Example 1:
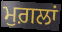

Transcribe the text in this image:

ਮੁਗ਼ਲਾਂ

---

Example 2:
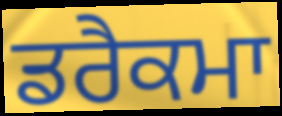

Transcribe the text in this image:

ਡਰੈਕਮਾ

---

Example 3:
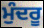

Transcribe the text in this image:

ਮੁੰਦਰੂ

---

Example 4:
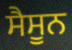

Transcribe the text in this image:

ਸੈਸੂਨ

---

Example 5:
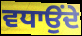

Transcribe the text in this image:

ਵਧਾਉਂਦੇ